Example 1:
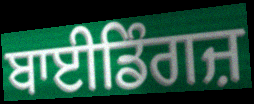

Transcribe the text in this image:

ਬਾਈਡਿੰਗਜ਼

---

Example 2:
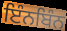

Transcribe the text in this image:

ਇੰਨਬਿੰਨ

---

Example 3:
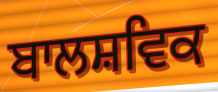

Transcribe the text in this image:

ਬਾਲਸ਼ਵਿਕ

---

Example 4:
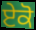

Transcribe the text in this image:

ਏਕੋ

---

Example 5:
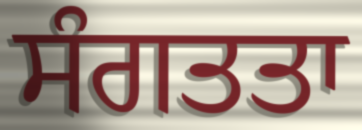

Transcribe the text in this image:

ਸੰਗਤਤਾ